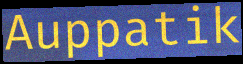
Auppatik